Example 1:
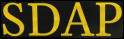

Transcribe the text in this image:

SDAP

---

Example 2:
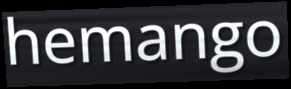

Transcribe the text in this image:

hemango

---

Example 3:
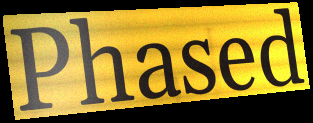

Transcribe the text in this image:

Phased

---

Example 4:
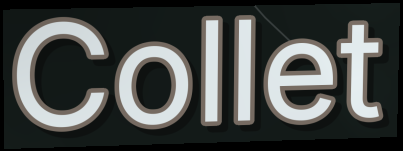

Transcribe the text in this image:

Collet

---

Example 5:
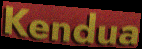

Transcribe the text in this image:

Kendua